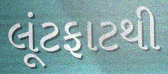
લૂંટફાટથી